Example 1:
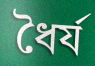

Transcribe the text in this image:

ধৈৰ্য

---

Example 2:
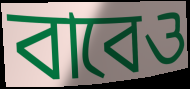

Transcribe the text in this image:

বাবেও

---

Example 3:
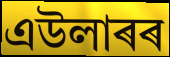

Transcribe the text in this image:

এউলাৰৰ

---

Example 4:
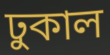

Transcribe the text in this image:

ঢুকাল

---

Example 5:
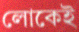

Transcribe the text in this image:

লোকেই